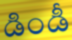
డిండీ